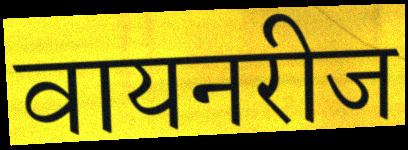
वायनरीज